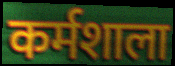
कर्मशाला